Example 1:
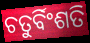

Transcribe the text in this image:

ଚତୁର୍ବିଂଶତି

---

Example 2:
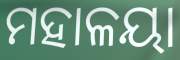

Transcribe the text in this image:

ମହାଳୟା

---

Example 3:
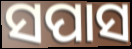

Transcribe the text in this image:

ସପାସ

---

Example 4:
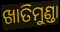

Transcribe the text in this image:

ଖାତିମୁଣ୍ଡା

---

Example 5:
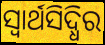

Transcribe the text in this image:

ସ୍ଵାର୍ଥସିଦ୍ଧିର